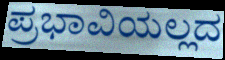
ಪ್ರಭಾವಿಯಲ್ಲದ